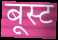
बूस्ट